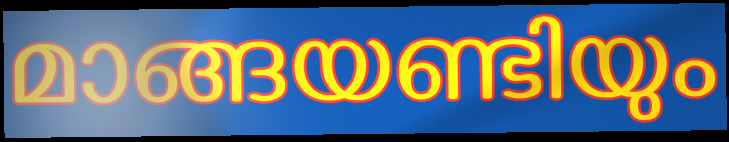
മാങ്ങയണ്ടിയും